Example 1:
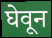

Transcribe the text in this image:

घेवून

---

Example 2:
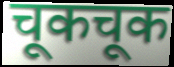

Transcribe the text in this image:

चूकचूक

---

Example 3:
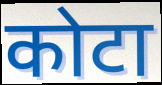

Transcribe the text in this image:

कोटा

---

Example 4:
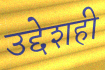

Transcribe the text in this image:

उद्देशही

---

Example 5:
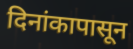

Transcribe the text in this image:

दिनांकापासून